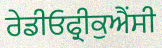
ਰੇਡੀਓਫ੍ਰੀਕੁਐਂਸੀ